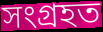
সংগ্ৰহত